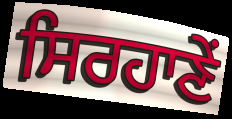
ਸਿਰਹਾਣੇਂ